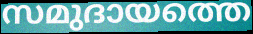
സമുദായത്തെ